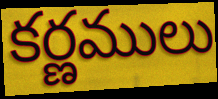
కర్ణములు